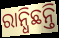
ରାନ୍ଧିଛନ୍ତି